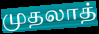
முதலாத்